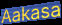
Aakasa